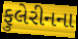
ફુલેરીનના